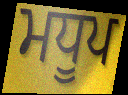
ਮਧੂਪ